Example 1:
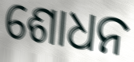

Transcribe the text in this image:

ଶୋଧନ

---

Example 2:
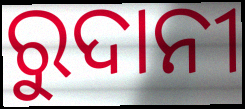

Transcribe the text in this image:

ରୁଦାନୀ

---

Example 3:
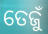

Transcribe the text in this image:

ତେଜୁଁ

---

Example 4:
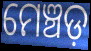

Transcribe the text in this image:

ମେଞ୍ଚଡ଼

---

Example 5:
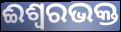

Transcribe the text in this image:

ଈଶ୍ୱରଭକ୍ତ